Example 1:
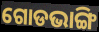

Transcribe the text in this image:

ଗୋଡଭାଙ୍ଗି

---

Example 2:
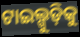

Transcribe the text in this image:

ଟାଇଲ୍ଗୁଡ଼ିକୁ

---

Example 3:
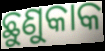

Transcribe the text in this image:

ଛୁଣୁକାକ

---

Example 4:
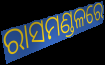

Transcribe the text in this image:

ରାସମଣ୍ଡଳରେ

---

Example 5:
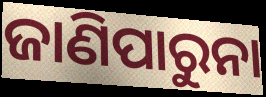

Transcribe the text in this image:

ଜାଣିପାରୁନା